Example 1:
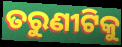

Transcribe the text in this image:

ତରୁଣୀଟିକୁ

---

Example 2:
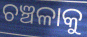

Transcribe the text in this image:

ଚଞ୍ଚଳାକୁ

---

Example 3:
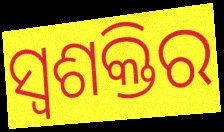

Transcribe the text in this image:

ସ୍ଵଶକ୍ତିର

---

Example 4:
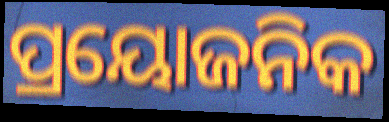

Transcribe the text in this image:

ପ୍ରୟୋଜନିକ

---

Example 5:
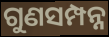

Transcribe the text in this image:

ଗୁଣସମ୍ପନ୍ନ